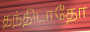
தந்திடாதோ